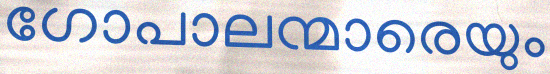
ഗോപാലന്മാരെയും